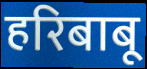
हरिबाबू